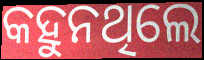
କହୁନଥିଲେ